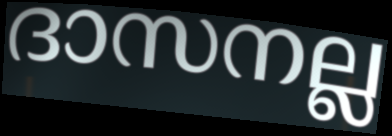
ദാസനല്ല